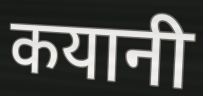
कयानी